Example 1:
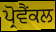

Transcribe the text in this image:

ਪ੍ਰੋਵੈਂਕਲ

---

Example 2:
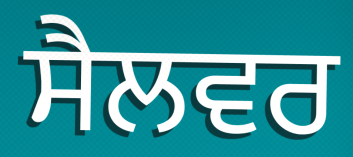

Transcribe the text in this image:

ਸੈਲਵਰ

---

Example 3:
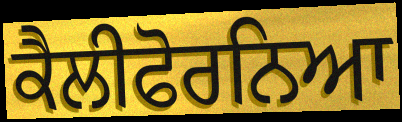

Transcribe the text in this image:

ਕੈਲੀਫੋਰਨਿਆ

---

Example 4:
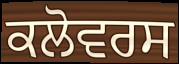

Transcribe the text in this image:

ਕਲੋਵਰਸ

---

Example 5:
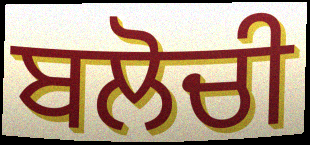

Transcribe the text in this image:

ਬਲੋਚੀ